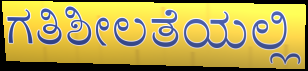
ಗತಿಶೀಲತೆಯಲ್ಲಿ